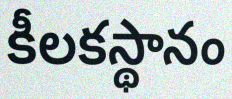
కీలకస్థానం